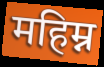
महिम्न